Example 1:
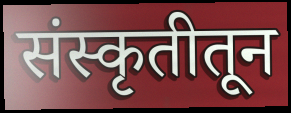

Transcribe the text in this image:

संस्कृतीतून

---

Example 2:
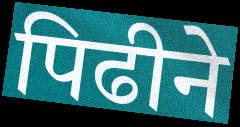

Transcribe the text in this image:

पिढीने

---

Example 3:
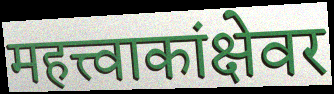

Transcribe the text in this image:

महत्त्वाकांक्षेवर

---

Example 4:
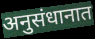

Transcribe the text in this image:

अनुसंधानात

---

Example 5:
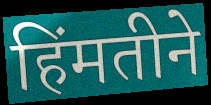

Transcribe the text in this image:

हिंमतीने